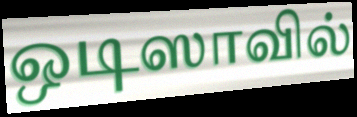
ஒடிஸாவில்